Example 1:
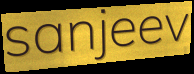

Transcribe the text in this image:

sanjeev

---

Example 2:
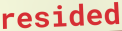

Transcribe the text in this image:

resided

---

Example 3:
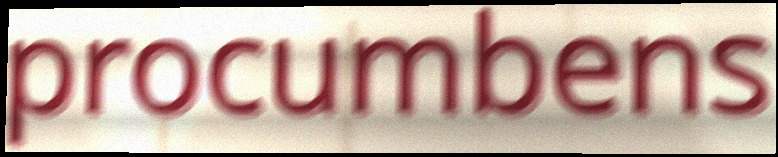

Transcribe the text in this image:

procumbens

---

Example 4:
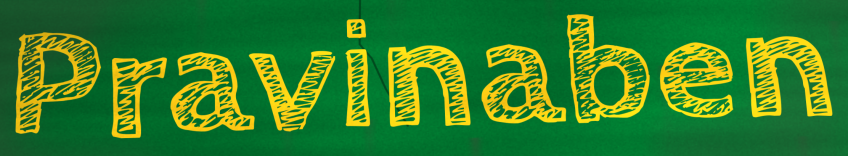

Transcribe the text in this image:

Pravinaben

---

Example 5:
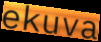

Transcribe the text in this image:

ekuva